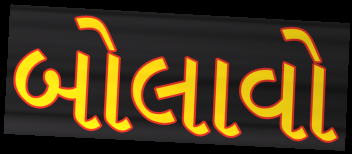
બોલાવો